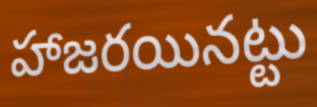
హాజరయినట్టు